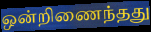
ஒன்றிணைந்தது